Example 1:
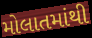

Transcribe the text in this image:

મોલાતમાંથી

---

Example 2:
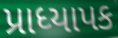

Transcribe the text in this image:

પ્રાધ્યાપક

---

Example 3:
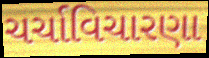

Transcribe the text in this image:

ચર્ચાવિચારણા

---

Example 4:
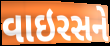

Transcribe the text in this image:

વાઇરસને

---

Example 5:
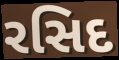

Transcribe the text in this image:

રસિદ